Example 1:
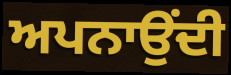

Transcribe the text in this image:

ਅਪਨਾਉਂਦੀ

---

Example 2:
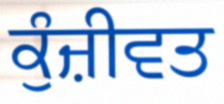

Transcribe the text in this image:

ਕੁੰਜ਼ੀਵਤ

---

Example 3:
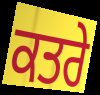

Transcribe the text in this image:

ਕਤਰੇ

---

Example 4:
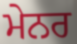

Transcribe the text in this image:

ਮੇਨਰ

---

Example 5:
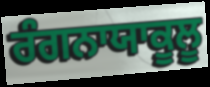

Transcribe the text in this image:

ਰੰਗਨਾਯਾਕੂਲੂ